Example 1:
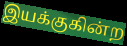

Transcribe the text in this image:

இயக்குகின்ற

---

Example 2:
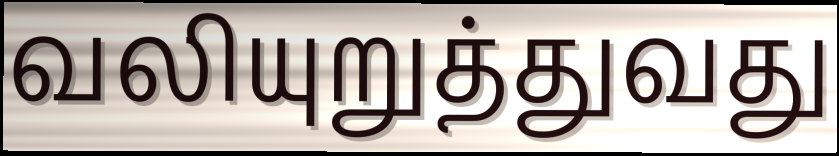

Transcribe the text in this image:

வலியுறுத்துவது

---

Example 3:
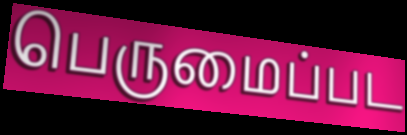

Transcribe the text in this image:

பெருமைப்பட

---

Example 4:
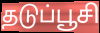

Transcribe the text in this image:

தடுப்பூசி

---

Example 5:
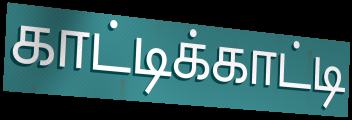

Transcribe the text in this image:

காட்டிக்காட்டி